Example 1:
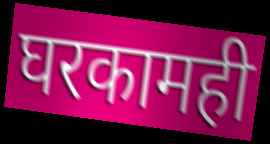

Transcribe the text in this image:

घरकामही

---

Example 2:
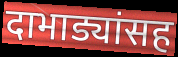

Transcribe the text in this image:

दाभाड्यांसह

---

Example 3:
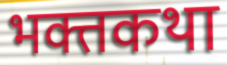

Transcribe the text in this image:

भक्तकथा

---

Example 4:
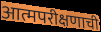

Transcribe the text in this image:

आत्मपरीक्षणाची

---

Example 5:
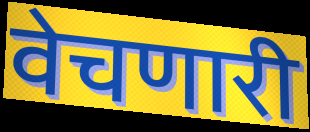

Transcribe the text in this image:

वेचणारी